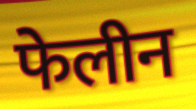
फेलीन